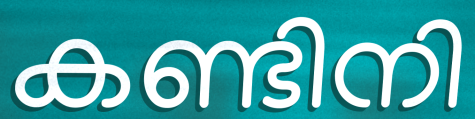
കണ്ടിനി